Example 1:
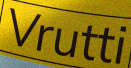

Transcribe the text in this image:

Vrutti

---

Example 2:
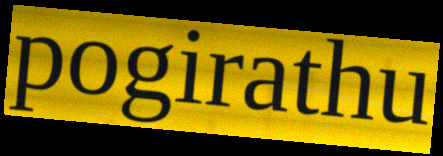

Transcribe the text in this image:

pogirathu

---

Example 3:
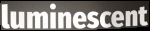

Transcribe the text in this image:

luminescent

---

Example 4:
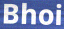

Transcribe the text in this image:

Bhoi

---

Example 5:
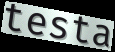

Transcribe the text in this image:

testa